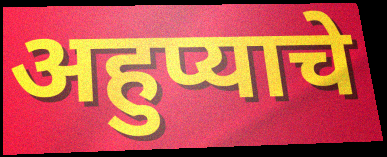
अहुप्याचे